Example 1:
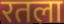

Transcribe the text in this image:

रतला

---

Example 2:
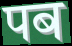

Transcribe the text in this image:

पब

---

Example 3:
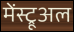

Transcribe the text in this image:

मेंस्ट्रूअल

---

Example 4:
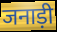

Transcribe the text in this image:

जनाड़ी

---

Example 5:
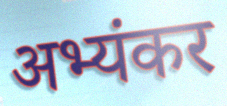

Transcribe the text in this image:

अभ्यंकर